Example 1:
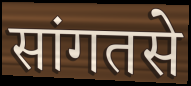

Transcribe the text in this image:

सांगतसे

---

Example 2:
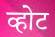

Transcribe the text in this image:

व्होट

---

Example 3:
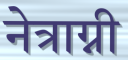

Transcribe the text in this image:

नेत्राग्नी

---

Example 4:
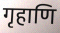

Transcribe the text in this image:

गृहाणि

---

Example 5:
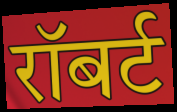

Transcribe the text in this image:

रॉबर्ट